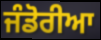
ਜੰਡੋਰੀਆ